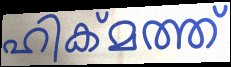
ഹിക്മത്ത്